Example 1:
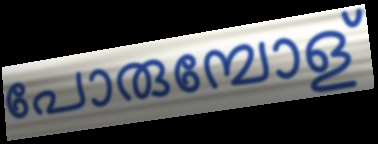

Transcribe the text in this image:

പോരുമ്പോള്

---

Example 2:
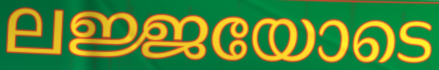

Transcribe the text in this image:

ലജ്ജയോടെ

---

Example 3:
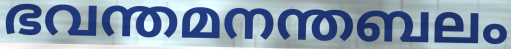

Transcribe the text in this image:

ഭവന്തമനന്തബലം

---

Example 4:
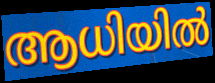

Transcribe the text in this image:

ആധിയിൽ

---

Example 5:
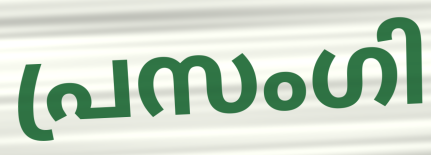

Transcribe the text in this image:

പ്രസംഗി